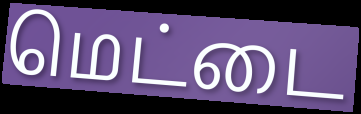
மெட்டை